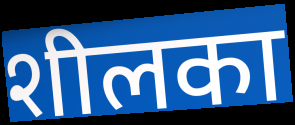
शीलका